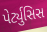
પેર્ટ્યુસિસ